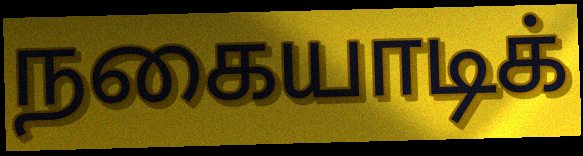
நகையாடிக்